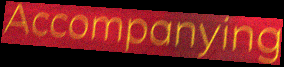
Accompanying